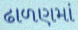
ઢાળણમાં